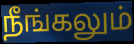
நீங்கலும்